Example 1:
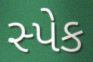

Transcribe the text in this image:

સ્પેક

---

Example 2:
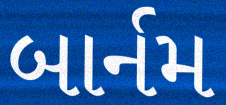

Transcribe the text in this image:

બાર્નમ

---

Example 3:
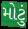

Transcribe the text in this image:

મોટું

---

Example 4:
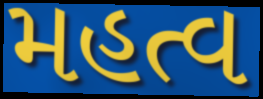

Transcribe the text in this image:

મહત્વ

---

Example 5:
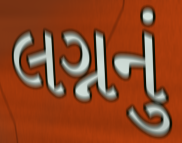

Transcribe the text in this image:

લગ્નનું